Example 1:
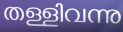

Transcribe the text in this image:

തള്ളിവന്നു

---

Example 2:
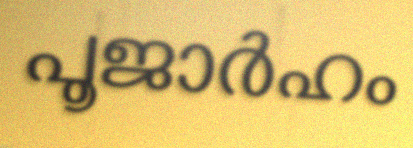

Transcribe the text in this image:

പൂജാർഹം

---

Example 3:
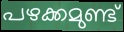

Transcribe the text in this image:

പഴക്കമുണ്ട്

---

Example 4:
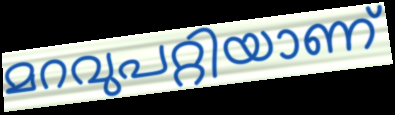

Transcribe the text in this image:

മറവുപറ്റിയാണ്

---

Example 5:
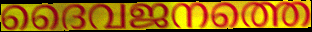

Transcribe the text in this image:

ദൈവജനത്തെ